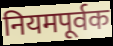
नियमपूर्वक